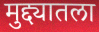
मुद्द्यातला